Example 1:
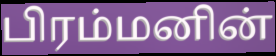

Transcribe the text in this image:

பிரம்மனின்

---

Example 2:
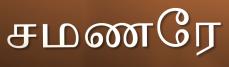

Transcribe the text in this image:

சமணரே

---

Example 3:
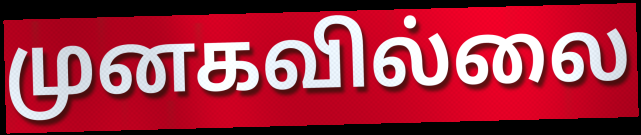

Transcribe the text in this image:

முனகவில்லை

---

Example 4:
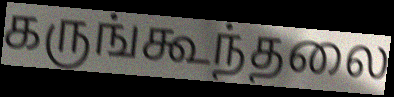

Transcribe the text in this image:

கருங்கூந்தலை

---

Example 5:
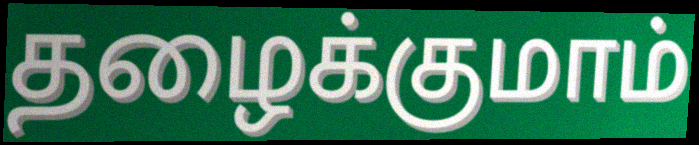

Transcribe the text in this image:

தழைக்குமாம்